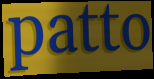
patto